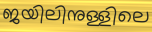
ജയിലിനുള്ളിലെ